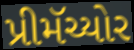
પ્રીમૅચ્યોર